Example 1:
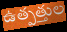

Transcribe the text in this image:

ఉత్పత్తుల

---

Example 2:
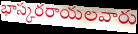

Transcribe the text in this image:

భాస్కరరాయలవారు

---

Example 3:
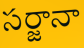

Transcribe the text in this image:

సర్జానా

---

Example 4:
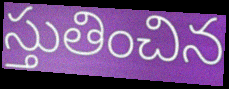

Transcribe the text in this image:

స్తుతించిన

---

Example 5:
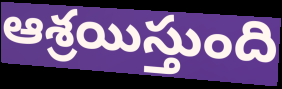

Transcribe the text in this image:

ఆశ్రయిస్తుంది